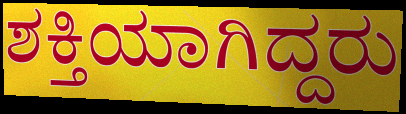
ಶಕ್ತಿಯಾಗಿದ್ದರು